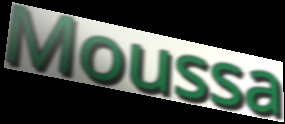
Moussa